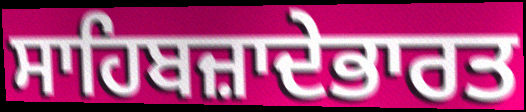
ਸਾਹਿਬਜ਼ਾਦੇਭਾਰਤ